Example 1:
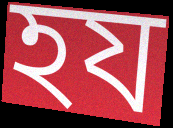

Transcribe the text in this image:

হয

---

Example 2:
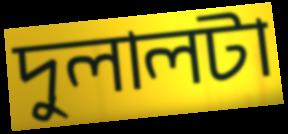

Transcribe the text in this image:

দুলালটা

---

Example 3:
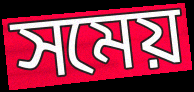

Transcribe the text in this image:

সমেয়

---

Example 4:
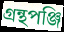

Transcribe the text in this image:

গ্রন্থপঞ্জি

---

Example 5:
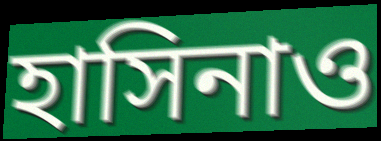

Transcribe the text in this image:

হাসিনাও